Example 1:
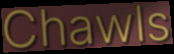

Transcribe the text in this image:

Chawls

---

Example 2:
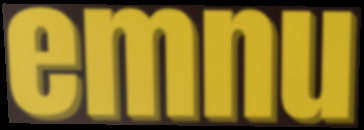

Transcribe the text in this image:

emnu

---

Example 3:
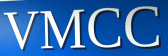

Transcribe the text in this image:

VMCC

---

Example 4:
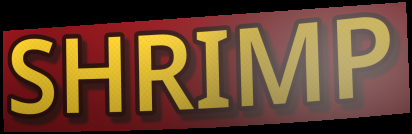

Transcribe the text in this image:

SHRIMP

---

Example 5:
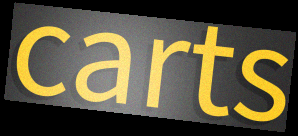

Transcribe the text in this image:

carts